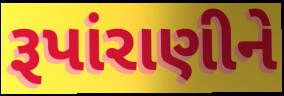
રૂપાંરાણીને